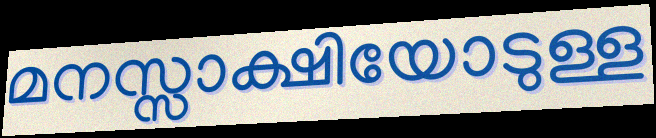
മനസ്സാക്ഷിയോടുള്ള